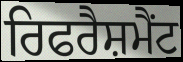
ਰਿਫਰੈਸ਼ਮੈਂਟ